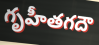
గృహీతగదౌ